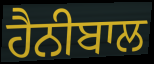
ਹੈਨੀਬਾਲ